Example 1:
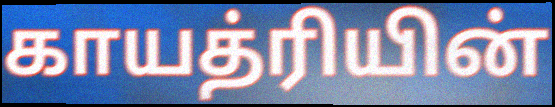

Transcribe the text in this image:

காயத்ரியின்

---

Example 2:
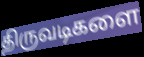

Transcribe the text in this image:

திருவடிகளை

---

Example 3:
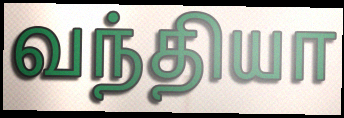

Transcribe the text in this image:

வந்தியா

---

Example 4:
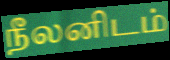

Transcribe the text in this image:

நீலனிடம்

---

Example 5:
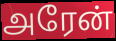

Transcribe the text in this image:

அரேன்